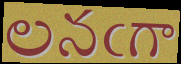
లనఁగా